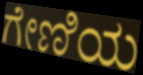
ಗೇಣಿಯ